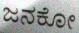
ಜನಕೋ